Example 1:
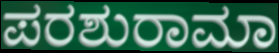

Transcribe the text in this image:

ಪರಶುರಾಮಾ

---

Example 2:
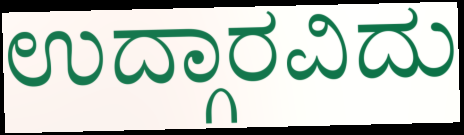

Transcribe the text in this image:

ಉದ್ಗಾರವಿದು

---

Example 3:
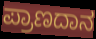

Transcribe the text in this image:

ಪ್ರಾಣದಾನ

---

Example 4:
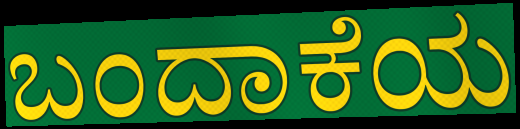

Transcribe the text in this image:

ಬಂದಾಕೆಯ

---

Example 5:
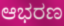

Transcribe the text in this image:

ಆಭರಣ